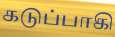
கடுப்பாகி